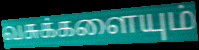
வசுக்களையும்